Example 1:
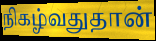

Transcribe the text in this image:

நிகழ்வதுதான்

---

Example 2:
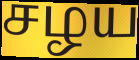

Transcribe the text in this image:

சழய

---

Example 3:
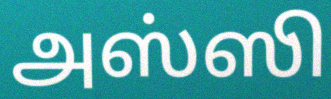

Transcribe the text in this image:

அஸ்ஸி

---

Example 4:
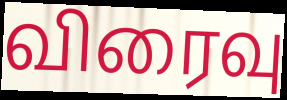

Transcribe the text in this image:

விரைவு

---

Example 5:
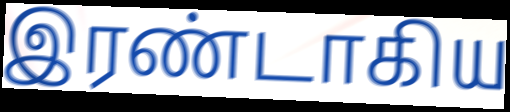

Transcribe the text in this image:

இரண்டாகிய